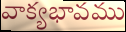
వాక్యభావము